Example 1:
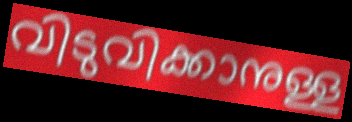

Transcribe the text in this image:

വിടുവിക്കാനുള്ള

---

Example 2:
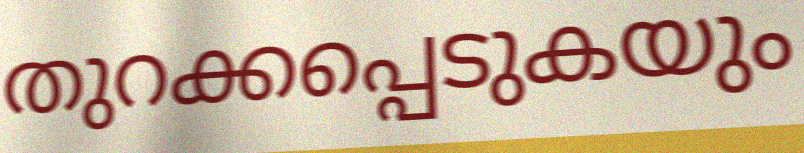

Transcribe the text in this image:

തുറക്കപ്പെടുകയും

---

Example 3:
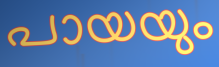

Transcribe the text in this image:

പായയും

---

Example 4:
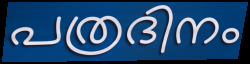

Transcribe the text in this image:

പത്രദിനം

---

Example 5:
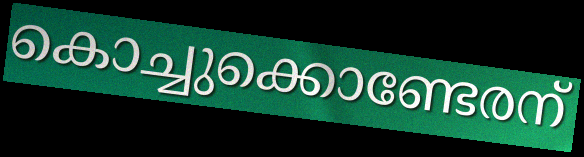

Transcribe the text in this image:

കൊച്ചുക്കൊണ്ടേരന്